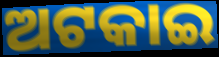
ଅଟକାଇ